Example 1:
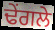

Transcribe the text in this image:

ਢੇਂਗਲੇ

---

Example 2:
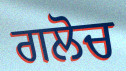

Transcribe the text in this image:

ਗਲੋਚ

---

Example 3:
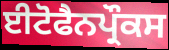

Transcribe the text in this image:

ਈਟੋਫੈਨਪ੍ਰੌਕਸ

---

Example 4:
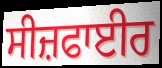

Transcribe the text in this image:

ਸੀਜ਼ਫਾਈਰ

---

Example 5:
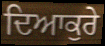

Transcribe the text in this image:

ਦਿਆਕੁਰੇ